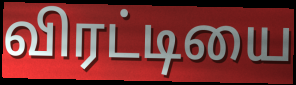
விரட்டியை